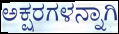
ಅಕ್ಷರಗಳನ್ನಾಗಿ